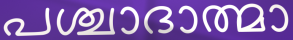
പശ്ചാദാത്മാ